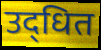
उद्धित